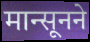
मान्सूनने